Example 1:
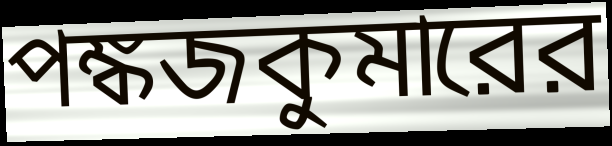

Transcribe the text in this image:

পঙ্কজকুমারের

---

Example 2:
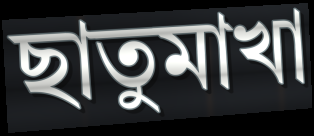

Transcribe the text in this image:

ছাতুমাখা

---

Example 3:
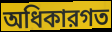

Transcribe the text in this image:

অধিকারগত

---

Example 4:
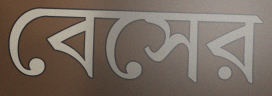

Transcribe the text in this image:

বেসের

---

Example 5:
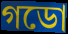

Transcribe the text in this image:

গডো